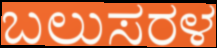
ಬಲುಸರಳ